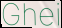
Ghei